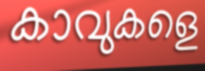
കാവുകളെ